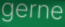
gerne